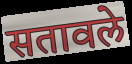
सतावले